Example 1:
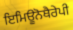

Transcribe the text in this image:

ਇਮਿਊਨੋਥੈਰੇਪੀ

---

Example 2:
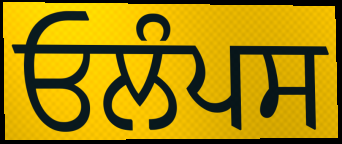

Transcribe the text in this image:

ਓਲੰਪਸ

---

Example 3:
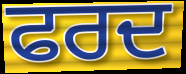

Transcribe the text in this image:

ਫਰਦ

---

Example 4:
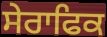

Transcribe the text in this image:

ਸੇਰਾਫਿਕ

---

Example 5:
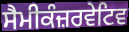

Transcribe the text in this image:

ਸੈਮੀਕੰਜ਼ਰਵੇਟਿਵ